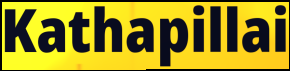
Kathapillai